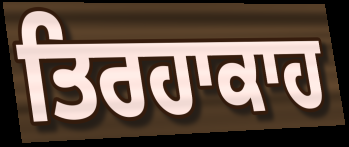
ਤਿਰਹਾਕਾਹ